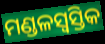
ମଣ୍ଡଳସ୍ୱସ୍ତିକ